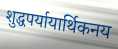
शुद्धपर्यायार्थिकनय